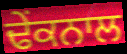
ਢੇਂਕਨਾਲ